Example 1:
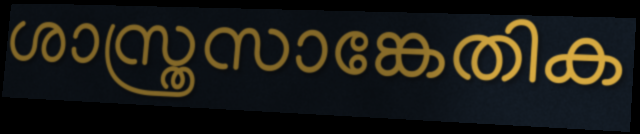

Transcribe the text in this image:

ശാസ്ത്രസാങ്കേതിക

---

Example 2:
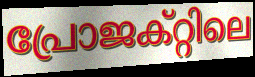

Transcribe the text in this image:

പ്രോജക്റ്റിലെ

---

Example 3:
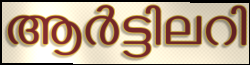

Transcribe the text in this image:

ആർട്ടിലറി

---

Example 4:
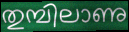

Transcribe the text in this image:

തുമ്പിലാണു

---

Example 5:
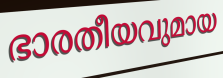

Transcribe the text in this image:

ഭാരതീയവുമായ